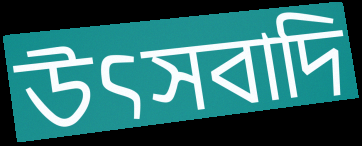
উৎসবাদি